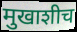
मुखाशीच